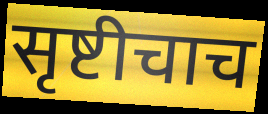
सृष्टीचाच